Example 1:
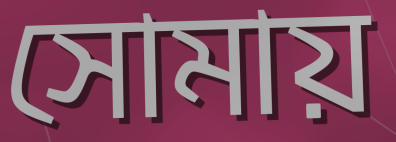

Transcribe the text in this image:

সোমায়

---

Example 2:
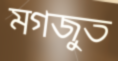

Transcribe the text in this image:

মগজুত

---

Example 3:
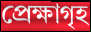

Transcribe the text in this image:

প্ৰেক্ষাগৃহ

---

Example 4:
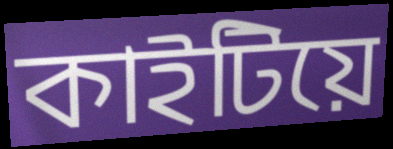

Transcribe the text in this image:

কাইটিয়ে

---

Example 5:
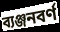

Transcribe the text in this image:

ব্যঞ্জনবৰ্ণ